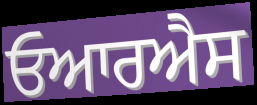
ਓਆਰਐਸ